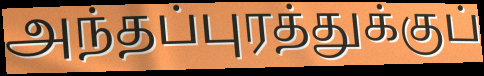
அந்தப்புரத்துக்குப்